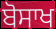
ਬੋਸਾਖ